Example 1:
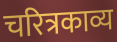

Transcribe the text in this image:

चरित्रकाव्य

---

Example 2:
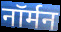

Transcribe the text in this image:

नॉर्मन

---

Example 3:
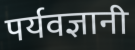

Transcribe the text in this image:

पर्यवज्ञानी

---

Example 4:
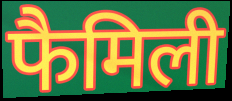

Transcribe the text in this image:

फैमिली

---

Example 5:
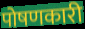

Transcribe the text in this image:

पोषणकारी